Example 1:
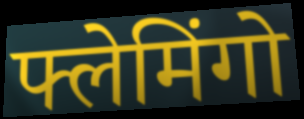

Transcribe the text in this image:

फ्लेमिंगो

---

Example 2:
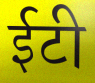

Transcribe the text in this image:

ईटी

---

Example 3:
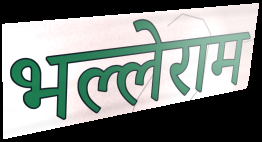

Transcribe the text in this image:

भल्लेराम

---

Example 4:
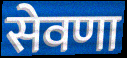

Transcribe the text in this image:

सेवणा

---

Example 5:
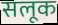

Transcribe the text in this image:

सलूक